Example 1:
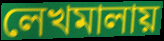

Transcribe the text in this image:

লেখমালায়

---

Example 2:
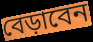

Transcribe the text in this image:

বেড়াবেন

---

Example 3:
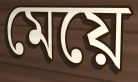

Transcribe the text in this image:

মেয়ে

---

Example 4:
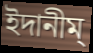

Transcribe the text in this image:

ইদানীম্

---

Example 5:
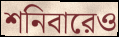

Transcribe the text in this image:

শনিবারেও